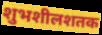
शुभशीलशतक